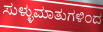
ಸುಳ್ಳುಮಾತುಗಳಿಂದ